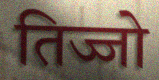
तिज्जो